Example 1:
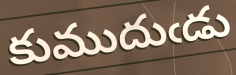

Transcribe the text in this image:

కుముదుఁడు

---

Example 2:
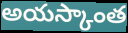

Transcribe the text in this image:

అయస్కాంత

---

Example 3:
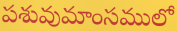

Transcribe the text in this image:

పశువుమాంసములో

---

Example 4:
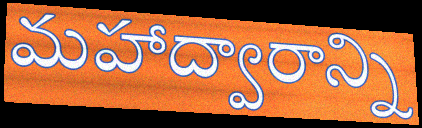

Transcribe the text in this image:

మహాద్వారాన్ని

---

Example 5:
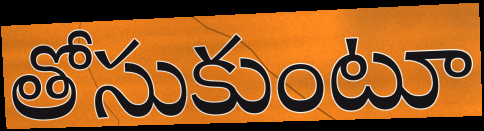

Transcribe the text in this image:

తోసుకుంటూ